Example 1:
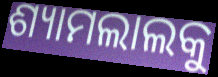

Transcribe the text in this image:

ଶ୍ୟାମଲାଲକୁ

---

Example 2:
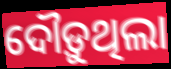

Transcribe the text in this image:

ଦୌଡ଼ୁଥିଲା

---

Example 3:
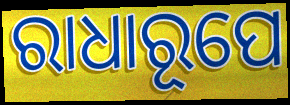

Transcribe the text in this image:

ରାଧାରୂପେ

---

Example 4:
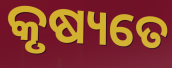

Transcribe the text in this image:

କୃଷ୍ୟତେ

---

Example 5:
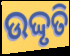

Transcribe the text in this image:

ଉଦ୍ଦୃତି